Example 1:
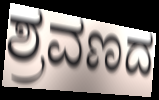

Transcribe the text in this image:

ಶ್ರವಣದ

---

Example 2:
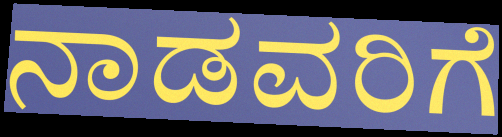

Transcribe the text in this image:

ನಾಡವರಿಗೆ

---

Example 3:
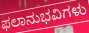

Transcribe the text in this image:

ಫಲಾನುಭವಿಗಳು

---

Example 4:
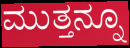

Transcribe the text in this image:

ಮುತ್ತನ್ನೂ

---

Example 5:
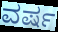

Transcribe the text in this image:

ವರ್ಷ